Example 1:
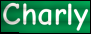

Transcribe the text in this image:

Charly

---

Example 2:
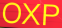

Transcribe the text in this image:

OXP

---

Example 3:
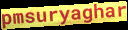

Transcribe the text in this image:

pmsuryaghar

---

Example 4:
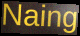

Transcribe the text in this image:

Naing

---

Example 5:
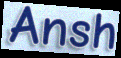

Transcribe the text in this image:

Ansh